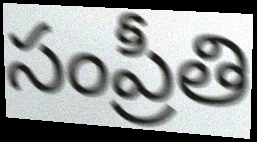
సంప్రీతి